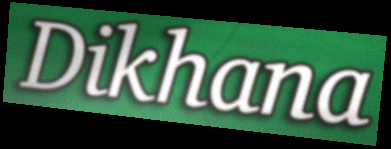
Dikhana